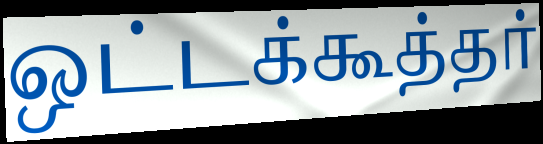
ஒட்டக்கூத்தர்